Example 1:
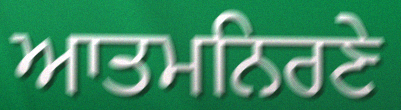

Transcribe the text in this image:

ਆਤਮਨਿਰਣੇ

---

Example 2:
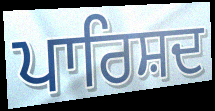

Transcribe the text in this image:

ਪਾਰਿਸ਼ਦ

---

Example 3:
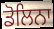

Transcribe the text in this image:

ਡੋਲਿਨਾ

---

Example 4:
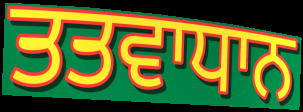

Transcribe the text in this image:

ਤਤਵਾਧਾਨ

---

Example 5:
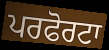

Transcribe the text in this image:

ਪਰਫੋਰਟਾ